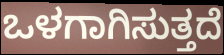
ಒಳಗಾಗಿಸುತ್ತದೆ